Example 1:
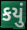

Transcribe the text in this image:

કયું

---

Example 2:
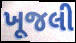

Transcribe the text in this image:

ખૂજલી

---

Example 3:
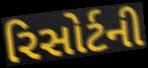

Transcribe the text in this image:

રિસોર્ટની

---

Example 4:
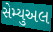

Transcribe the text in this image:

સેમ્યુઅલ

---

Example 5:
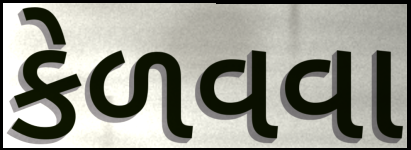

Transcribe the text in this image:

કેળવવા